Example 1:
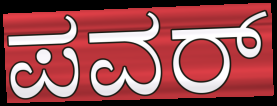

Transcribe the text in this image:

ಪವರ್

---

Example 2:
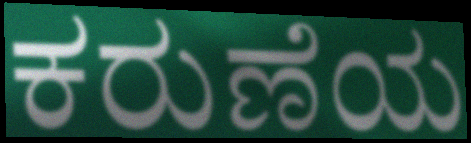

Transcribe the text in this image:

ಕರುಣೆಯ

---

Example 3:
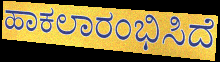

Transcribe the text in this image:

ಹಾಕಲಾರಂಭಿಸಿದೆ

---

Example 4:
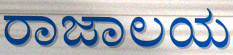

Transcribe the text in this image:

ರಾಜಾಲಯ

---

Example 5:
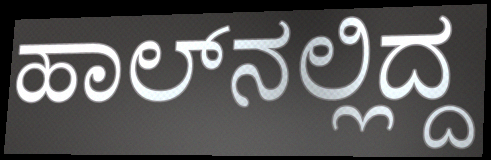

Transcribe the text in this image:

ಹಾಲ್‌ನಲ್ಲಿದ್ದ